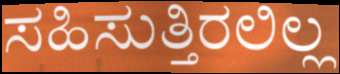
ಸಹಿಸುತ್ತಿರಲಿಲ್ಲ